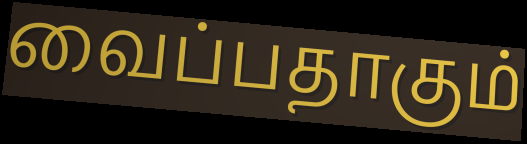
வைப்பதாகும்